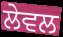
ਲੇਵਲ